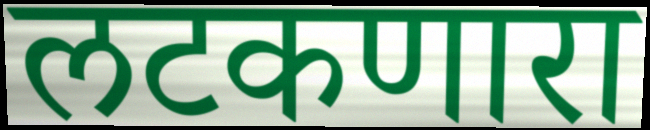
लटकणारा